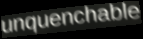
unquenchable